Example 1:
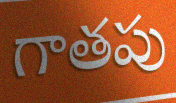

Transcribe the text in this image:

గాతపు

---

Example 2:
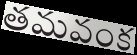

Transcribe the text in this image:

తమవంక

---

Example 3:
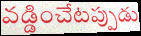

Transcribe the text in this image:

వడ్డించేటప్పుడు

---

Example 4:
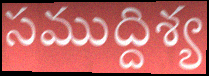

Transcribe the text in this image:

సముద్దిశ్య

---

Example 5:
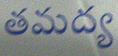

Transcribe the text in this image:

తమద్య